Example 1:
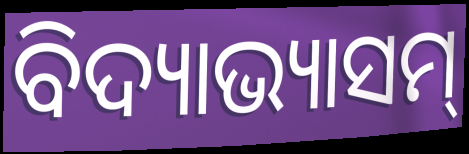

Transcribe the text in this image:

ବିଦ୍ୟାଭ୍ୟାସମ୍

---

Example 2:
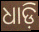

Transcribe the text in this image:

ଧାଡ଼ି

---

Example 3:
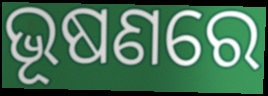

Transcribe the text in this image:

ଭୂଷଣରେ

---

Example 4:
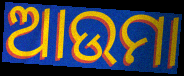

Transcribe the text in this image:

ଆଉମା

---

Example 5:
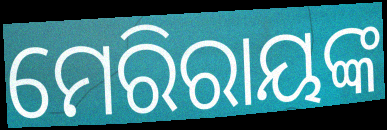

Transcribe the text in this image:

ମେରିରାୟଙ୍କ